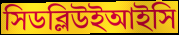
সিডব্লিউইআইসি